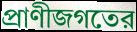
প্রাণীজগতের